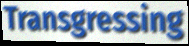
Transgressing